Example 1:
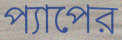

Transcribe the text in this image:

প্যাপের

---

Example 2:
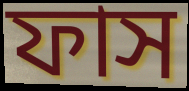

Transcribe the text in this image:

ফাস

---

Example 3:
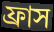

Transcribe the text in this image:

ফ্রাস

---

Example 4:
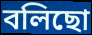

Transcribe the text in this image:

বলিছো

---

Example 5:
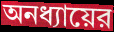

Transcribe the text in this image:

অনধ্যায়ের